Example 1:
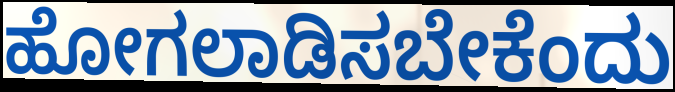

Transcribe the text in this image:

ಹೋಗಲಾಡಿಸಬೇಕೆಂದು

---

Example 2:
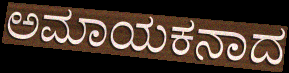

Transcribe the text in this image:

ಅಮಾಯಕನಾದ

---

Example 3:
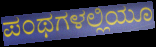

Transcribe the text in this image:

ಪಂಥಗಳಲ್ಲಿಯೂ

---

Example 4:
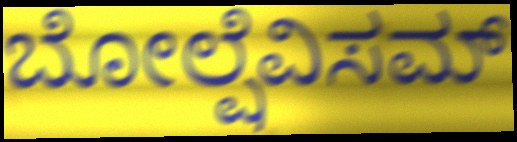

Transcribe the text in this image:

ಬೋಲ್ಷೆವಿಸಮ್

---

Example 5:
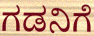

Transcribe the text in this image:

ಗಡನಿಗೆ